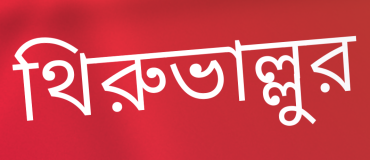
থিরুভাল্লুর